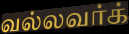
வல்லவர்க்